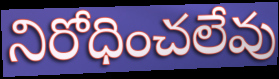
నిరోధించలేవు